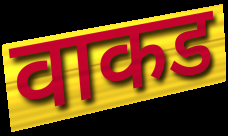
वाकड